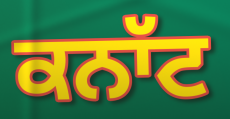
ਕਨਾੱਟ